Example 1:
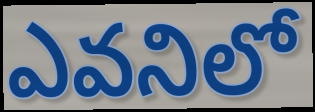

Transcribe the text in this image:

ఎవనిలో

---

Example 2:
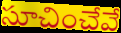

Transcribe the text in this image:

సూచించేవే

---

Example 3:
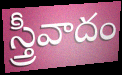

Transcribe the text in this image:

స్త్రీవాదం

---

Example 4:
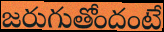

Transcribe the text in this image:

జరుగుతోందంటే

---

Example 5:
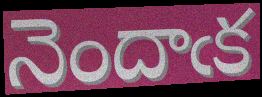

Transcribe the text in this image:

నెందాఁక